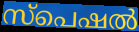
സ്പെഷൽ